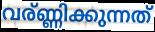
വര്ണ്ണിക്കുന്നത്